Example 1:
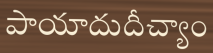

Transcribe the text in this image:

పాయాదుదీచ్యాం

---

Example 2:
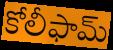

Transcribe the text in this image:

కోలీఫామ్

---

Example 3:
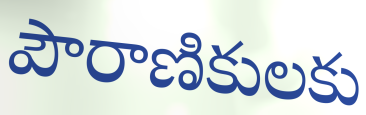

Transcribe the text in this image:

పౌరాణికులకు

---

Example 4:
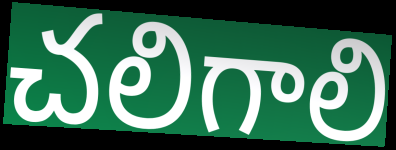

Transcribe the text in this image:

చలిగాలి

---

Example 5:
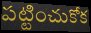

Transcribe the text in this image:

పట్టించుకోక